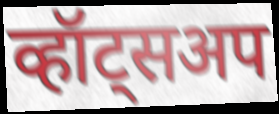
व्हॉट्सअप